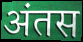
अंतस